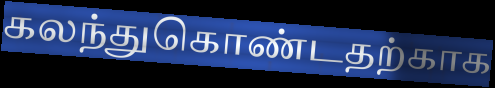
கலந்துகொண்டதற்காக